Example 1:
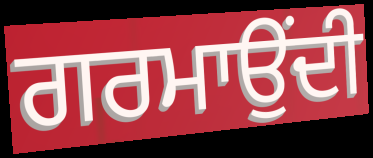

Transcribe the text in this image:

ਗਰਮਾਉਂਦੀ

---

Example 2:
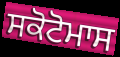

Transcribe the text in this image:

ਸਕੋਟੋਮਾਸ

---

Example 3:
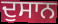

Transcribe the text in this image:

ਦੁਸਾਨ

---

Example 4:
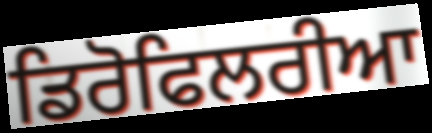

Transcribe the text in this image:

ਡਿਰੋਫਿਲਰੀਆ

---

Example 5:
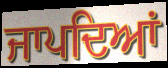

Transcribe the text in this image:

ਜਾਪਦਿਆਂ